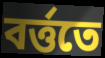
বর্ত্ততে